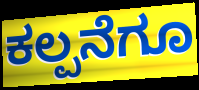
ಕಲ್ಪನೆಗೂ